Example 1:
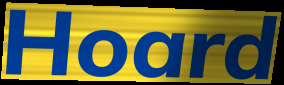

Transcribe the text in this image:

Hoard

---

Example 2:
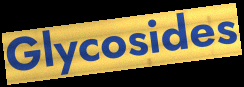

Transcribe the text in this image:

Glycosides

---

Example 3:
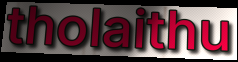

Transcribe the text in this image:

tholaithu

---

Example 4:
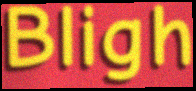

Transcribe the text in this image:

Bligh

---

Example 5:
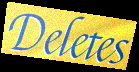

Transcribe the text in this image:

Deletes